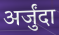
अर्जुंदा